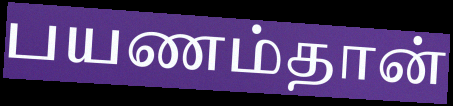
பயணம்தான்